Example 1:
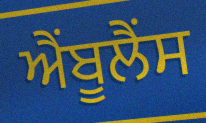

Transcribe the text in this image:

ਐਂਬੂਲੈਂਸ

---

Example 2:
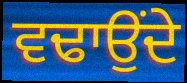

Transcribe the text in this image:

ਵਢਾਉਂਦੇ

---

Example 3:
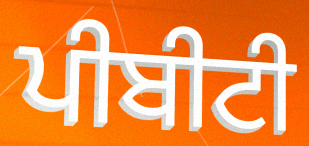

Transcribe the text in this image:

ਪੀਬੀਟੀ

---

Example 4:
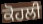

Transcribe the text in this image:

ਕੋਹਲੀ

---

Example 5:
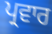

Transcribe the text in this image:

ਪ੍ਰਵਾਰ